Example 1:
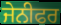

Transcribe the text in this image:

ਜੇਨੀਫਰ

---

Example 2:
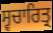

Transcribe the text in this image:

ਸ੍ਵਚਾਰਿਤ੍ਰ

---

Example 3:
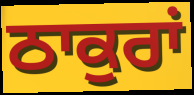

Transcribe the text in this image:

ਠਾਕੁਰਾਂ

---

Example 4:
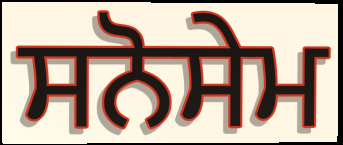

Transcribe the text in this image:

ਸਨੋਸੇਮ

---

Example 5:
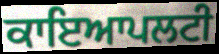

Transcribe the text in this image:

ਕਾਇਆਪਲਟੀ